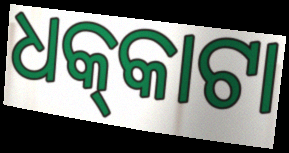
ଧକ୍‌କାଟା